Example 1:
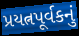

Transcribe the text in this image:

પ્રયત્નપૂર્વકનું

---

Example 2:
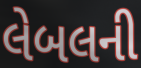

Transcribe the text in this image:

લેબલની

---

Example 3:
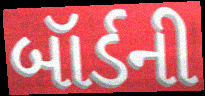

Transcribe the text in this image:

બૉર્ડની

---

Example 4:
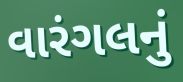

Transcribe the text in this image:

વારંગલનું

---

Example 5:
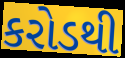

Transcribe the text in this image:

કરોડથી